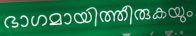
ഭാഗമായിത്തീരുകയും